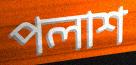
পলাশ